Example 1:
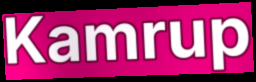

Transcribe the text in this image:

Kamrup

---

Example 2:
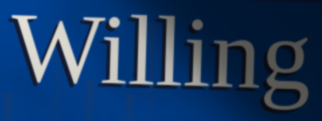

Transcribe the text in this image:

Willing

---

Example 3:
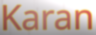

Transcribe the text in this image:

Karan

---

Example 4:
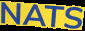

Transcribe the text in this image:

NATS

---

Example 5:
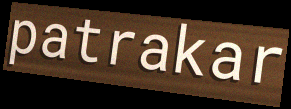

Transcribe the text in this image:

patrakar